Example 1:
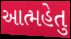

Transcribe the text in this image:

આત્મહેતુ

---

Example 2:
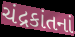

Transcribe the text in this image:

ચંદ્રકાંતનાં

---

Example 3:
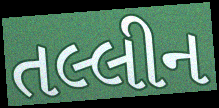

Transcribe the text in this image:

તલ્લીન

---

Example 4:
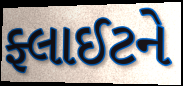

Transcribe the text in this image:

ફ્લાઈટને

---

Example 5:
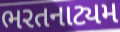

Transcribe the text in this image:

ભરતનાટ્યમ